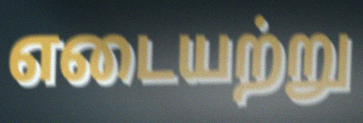
எடையற்று